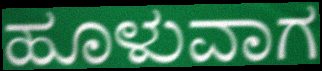
ಹೂಳುವಾಗ